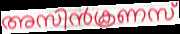
അസിൻക്രണസ്